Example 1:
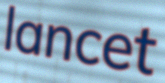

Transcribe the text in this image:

lancet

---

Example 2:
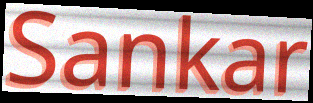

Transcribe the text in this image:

Sankar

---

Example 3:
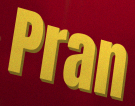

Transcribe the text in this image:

Pran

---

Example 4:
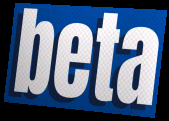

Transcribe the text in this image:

beta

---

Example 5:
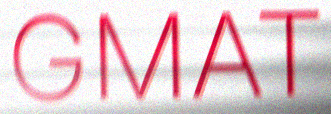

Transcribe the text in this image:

GMAT